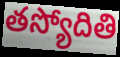
తస్యోదితి